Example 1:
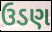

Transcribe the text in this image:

ઉડણ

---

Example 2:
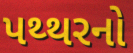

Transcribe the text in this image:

પથ્થરનો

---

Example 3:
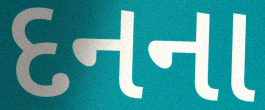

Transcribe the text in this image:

દનના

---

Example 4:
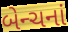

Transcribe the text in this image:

બેન્ચનાં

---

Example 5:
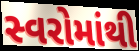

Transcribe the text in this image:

સ્વરોમાંથી